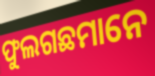
ଫୁଲଗଛମାନେ